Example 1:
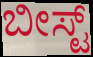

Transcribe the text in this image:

ಬೀಸ್ಟ್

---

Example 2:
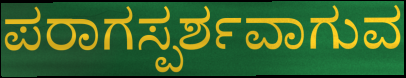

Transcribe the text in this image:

ಪರಾಗಸ್ಪರ್ಶವಾಗುವ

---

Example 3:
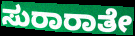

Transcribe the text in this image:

ಸುರಾರಾತೇ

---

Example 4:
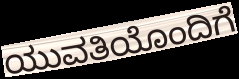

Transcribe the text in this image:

ಯುವತಿಯೊಂದಿಗೆ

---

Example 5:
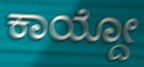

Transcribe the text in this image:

ಕಾಯ್ದೋ